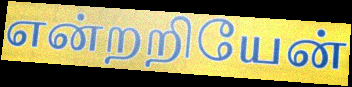
என்றறியேன்